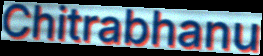
Chitrabhanu